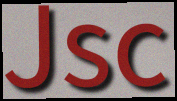
Jsc